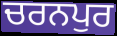
ਚਰਨਪੁਰ